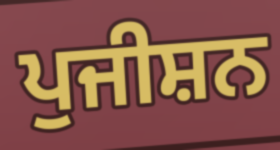
ਪੁਜੀਸ਼ਨ